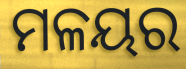
ମଳୟର